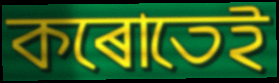
কৰোতেই